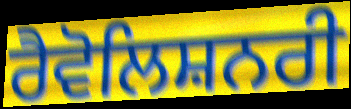
ਰੈਵੋਲਿਸ਼ਨਰੀ